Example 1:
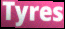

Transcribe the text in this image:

Tyres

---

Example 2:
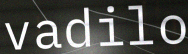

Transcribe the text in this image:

vadilo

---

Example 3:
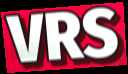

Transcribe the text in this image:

VRS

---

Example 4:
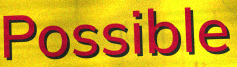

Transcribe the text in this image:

Possible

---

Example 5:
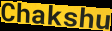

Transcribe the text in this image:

Chakshu